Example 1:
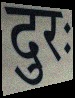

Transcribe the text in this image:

दुरः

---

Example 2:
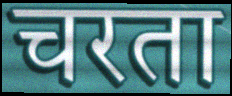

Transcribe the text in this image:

चरता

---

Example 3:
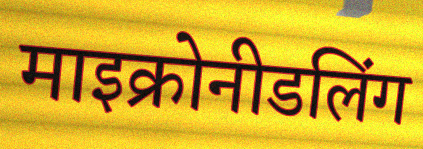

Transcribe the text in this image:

माइक्रोनीडलिंग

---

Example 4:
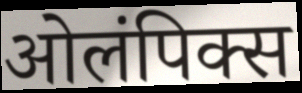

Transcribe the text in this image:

ओलंपिक्स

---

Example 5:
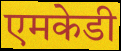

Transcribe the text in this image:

एमकेडी